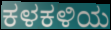
ಕಳಕಳಿಯ